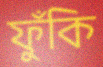
ফুঁকি